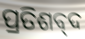
ପ୍ରତିଶବ୍‌ଦ